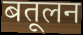
बतूलन